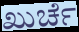
ಖುರ್ಚೆ